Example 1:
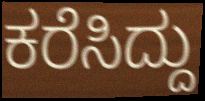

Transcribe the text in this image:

ಕರೆಸಿದ್ದು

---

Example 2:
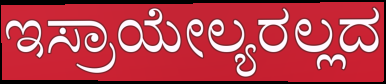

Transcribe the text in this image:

ಇಸ್ರಾಯೇಲ್ಯರಲ್ಲದ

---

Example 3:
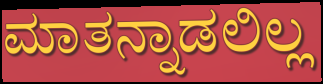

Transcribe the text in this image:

ಮಾತನ್ನಾಡಲಿಲ್ಲ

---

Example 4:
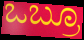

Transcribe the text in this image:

ಒಬ್ರೂ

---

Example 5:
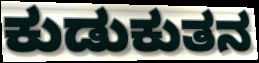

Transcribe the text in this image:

ಕುಡುಕುತನ